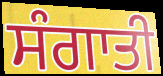
ਸੰਗਾਤੀ